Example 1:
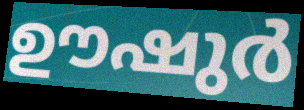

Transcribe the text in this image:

ഊഷുർ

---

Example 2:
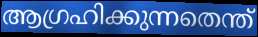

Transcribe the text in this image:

ആഗ്രഹിക്കുന്നതെന്ത്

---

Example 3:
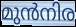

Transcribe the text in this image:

മുൻനിര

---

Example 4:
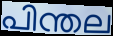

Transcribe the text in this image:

പിന്തല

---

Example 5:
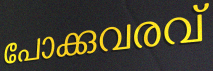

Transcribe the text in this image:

പോക്കുവരവ്